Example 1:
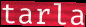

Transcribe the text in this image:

tarla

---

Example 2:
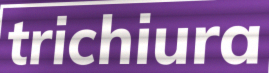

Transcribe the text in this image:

trichiura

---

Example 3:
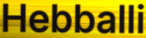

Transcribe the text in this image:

Hebballi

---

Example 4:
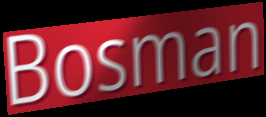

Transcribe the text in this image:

Bosman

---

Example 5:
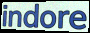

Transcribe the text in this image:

indore